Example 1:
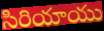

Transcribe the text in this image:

సిరియాయు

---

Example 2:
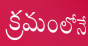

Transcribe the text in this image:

క్రమంలోనే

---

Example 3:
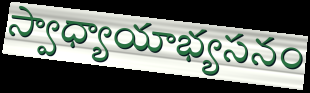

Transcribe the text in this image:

స్వాధ్యాయాభ్యసనం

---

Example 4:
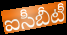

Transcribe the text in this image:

ఐసీబీటీ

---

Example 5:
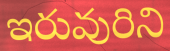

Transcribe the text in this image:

ఇరువురిని